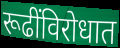
रूढींविरोधात